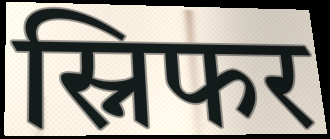
स्निफर